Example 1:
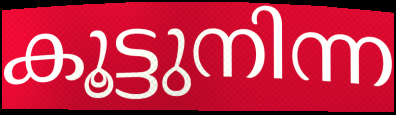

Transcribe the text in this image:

കൂട്ടുനിന്ന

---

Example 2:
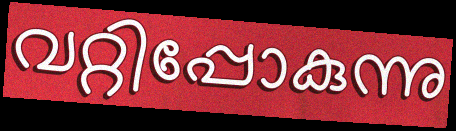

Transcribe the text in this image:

വറ്റിപ്പോകുന്നു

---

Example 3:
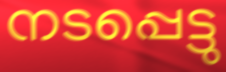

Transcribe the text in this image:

നടപ്പെട്ടു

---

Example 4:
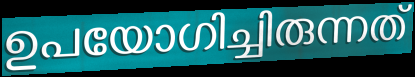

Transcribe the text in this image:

ഉപയോഗിച്ചിരുന്നത്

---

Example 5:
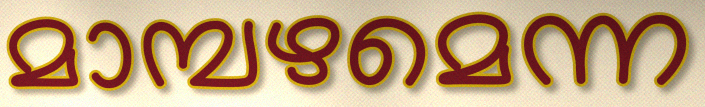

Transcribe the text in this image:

മാമ്പഴമെന്ന